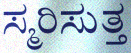
ಸ್ಮರಿಸುತ್ತ